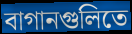
বাগানগুলিতে